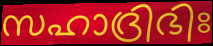
സഹാദ്രിഭിഃ